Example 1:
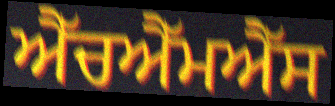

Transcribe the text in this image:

ਐੱਚਐੱਮਐੱਸ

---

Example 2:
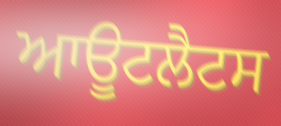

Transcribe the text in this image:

ਆਊਟਲੈਟਸ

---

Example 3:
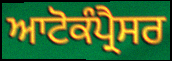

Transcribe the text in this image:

ਆਟੋਕੰਪ੍ਰੈਸਰ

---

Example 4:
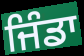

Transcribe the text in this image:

ਜਿੰਡਾ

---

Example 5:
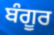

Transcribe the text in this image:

ਬੰਗੂਰ